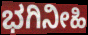
ಭಗಿನೀಹಿ